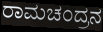
ರಾಮಚಂದ್ರನ